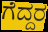
ಗೆದ್ದರ